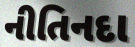
નીતિનદા